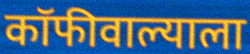
कॉफीवाल्याला